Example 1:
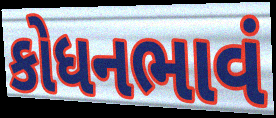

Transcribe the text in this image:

કોધનભાવં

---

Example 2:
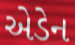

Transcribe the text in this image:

એડેન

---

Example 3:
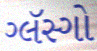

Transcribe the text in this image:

ગ્લૅસ્ગો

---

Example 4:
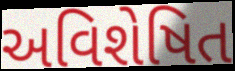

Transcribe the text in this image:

અવિશેષિત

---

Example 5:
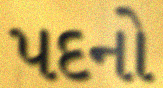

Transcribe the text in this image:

પદનો